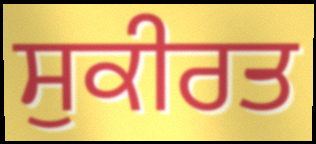
ਸੁਕੀਰਤ